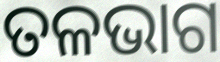
ତଳଭାଗ